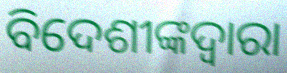
ବିଦେଶୀଙ୍କଦ୍ୱାରା